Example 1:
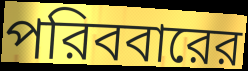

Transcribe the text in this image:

পরিববারের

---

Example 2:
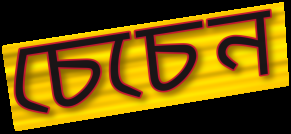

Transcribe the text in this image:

চেচেন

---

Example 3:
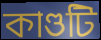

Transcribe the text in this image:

কাণ্ডটি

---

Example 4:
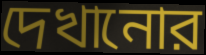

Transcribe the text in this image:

দেখানোর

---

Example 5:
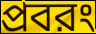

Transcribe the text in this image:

প্রবরং